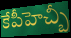
కేపీహెచ్బీ